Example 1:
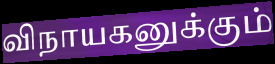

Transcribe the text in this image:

விநாயகனுக்கும்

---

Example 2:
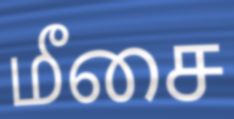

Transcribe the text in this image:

மீசை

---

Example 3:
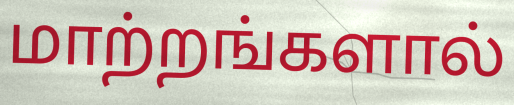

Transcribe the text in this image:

மாற்றங்களால்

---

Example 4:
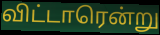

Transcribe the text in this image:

விட்டாரென்று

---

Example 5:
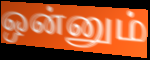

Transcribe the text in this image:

ஒன்னும்